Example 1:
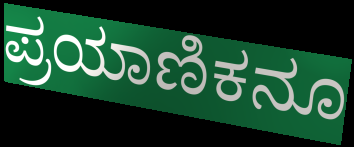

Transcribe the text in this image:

ಪ್ರಯಾಣಿಕನೂ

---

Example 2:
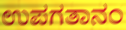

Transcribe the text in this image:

ಉಪಗತಾನಂ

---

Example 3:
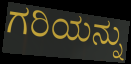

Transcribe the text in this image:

ಗರಿಯನ್ನು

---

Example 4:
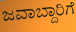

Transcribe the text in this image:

ಜವಾಬ್ದಾರಿಗೆ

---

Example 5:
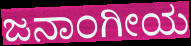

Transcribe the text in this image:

ಜನಾಂಗೀಯ